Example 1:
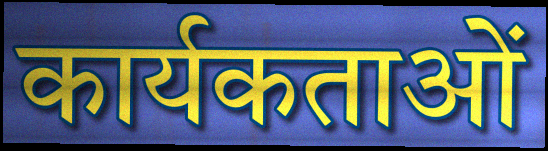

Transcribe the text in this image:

कार्यकताओं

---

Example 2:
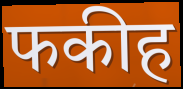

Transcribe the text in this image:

फकीह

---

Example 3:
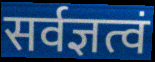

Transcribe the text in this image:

सर्वज्ञत्वं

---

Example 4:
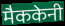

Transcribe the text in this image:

मैककेनी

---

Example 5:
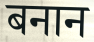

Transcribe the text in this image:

बनान